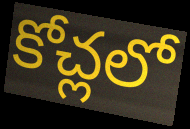
కోచ్లలో